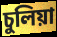
চুলিয়া